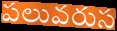
పలువరుస